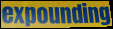
expounding